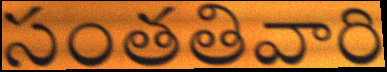
సంతతివారి